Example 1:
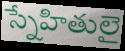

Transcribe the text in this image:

స్నేహితులై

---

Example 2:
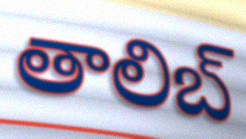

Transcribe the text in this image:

తాలిబ్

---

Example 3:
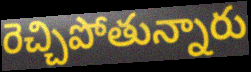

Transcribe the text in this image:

రెచ్చిపోతున్నారు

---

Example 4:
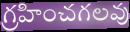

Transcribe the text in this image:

గ్రహించగలవు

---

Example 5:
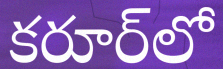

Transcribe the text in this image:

కరూర్‌లో